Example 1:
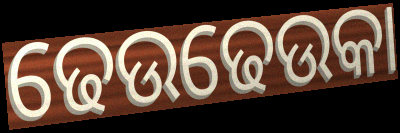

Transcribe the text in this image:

ଢେଉଢେଉକା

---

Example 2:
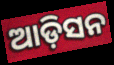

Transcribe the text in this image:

ଆଡ଼ିସନ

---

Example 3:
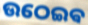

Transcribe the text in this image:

ଉଠେଇଵ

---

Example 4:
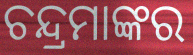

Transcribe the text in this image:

ଚନ୍ଦ୍ରମାଙ୍କର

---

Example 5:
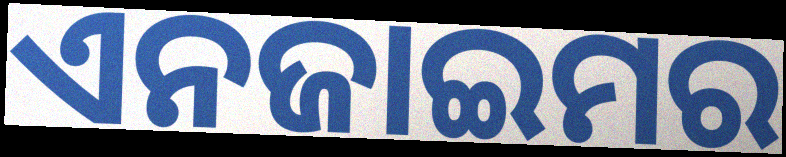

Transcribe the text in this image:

ଏନଜାଇମର